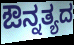
ಔನ್ನತ್ಯದ